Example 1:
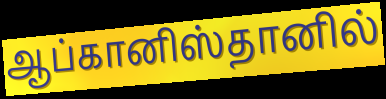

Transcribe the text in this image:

ஆப்கானிஸ்தானில்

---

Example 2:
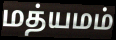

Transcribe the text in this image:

மத்யமம்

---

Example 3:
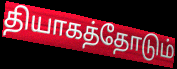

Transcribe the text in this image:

தியாகத்தோடும்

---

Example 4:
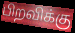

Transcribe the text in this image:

பிறவிக்கு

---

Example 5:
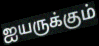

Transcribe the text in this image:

ஐயருக்கும்